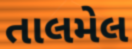
તાલમેલ